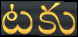
టకు